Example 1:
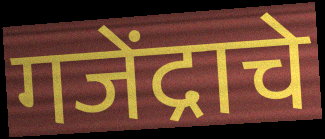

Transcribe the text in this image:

गजेंद्राचे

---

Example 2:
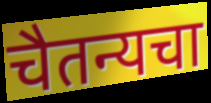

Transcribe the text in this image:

चैतन्यचा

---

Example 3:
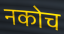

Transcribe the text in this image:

नकोच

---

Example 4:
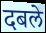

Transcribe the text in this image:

दबले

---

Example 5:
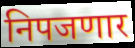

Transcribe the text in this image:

निपजणार